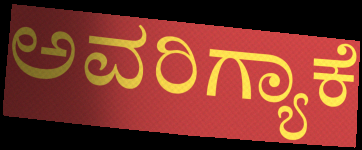
ಅವರಿಗ್ಯಾಕೆ